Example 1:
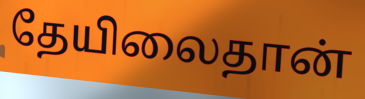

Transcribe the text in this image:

தேயிலைதான்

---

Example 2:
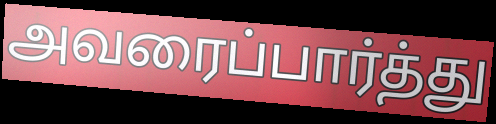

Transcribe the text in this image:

அவரைப்பார்த்து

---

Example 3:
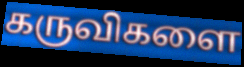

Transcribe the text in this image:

கருவிகளை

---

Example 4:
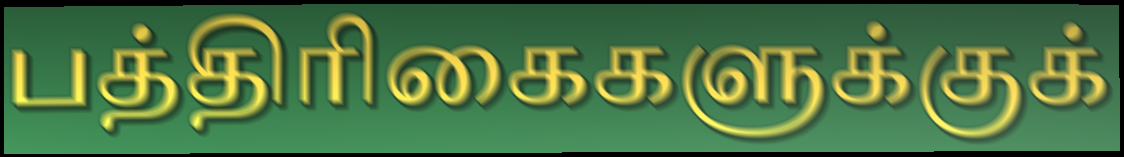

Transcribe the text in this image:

பத்திரிகைகளுக்குக்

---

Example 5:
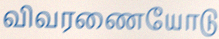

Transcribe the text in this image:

விவரணையோடு